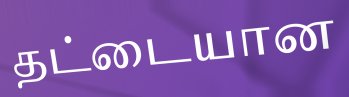
தட்டையான